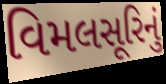
વિમલસૂરિનું